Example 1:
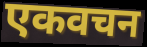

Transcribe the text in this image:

एकवचन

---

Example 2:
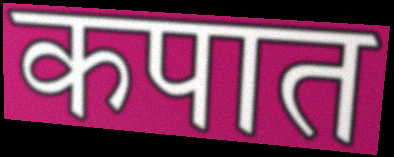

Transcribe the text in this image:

कपात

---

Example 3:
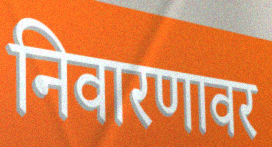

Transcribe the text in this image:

निवारणावर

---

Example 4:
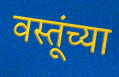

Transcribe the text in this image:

वस्तूंच्या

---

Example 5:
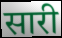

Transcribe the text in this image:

सारी